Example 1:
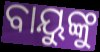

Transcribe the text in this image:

ବାୟୁଙ୍କୁ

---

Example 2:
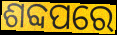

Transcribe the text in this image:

ଶବ୍ଦପରେ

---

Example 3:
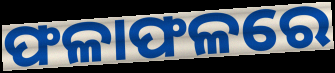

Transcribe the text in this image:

ଫଳାଫଳରେ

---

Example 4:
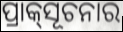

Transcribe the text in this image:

ପ୍ରାକ୍‌ସୂଚନାର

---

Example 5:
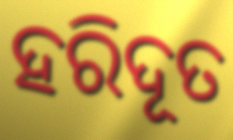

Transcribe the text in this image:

ହରିଦୂତ